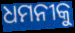
ଧମନୀକୁ